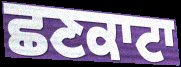
ਛਣਕਾਟਾ